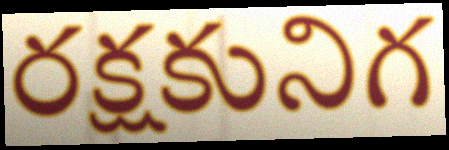
రక్షకునిగ